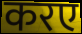
करए